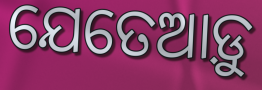
ଯେତେଆଡ଼ୁ